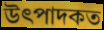
উৎপাদকত